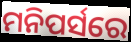
ମନିପର୍ସରେ